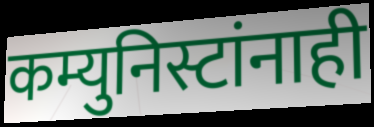
कम्युनिस्टांनाही